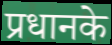
प्रधानके